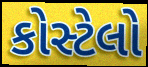
કોસ્ટેલો